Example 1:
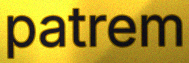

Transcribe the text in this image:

patrem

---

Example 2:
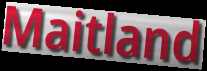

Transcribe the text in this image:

Maitland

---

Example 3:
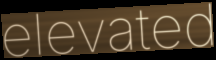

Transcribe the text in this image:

elevated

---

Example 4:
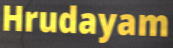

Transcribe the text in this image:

Hrudayam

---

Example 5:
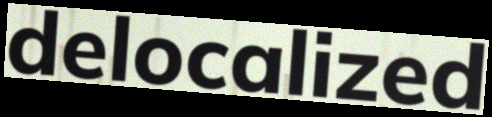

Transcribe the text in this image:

delocalized